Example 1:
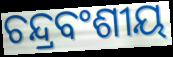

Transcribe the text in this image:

ଚନ୍ଦ୍ରବଂଶୀୟ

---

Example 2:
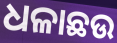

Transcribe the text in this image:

ଧଳାଛଉ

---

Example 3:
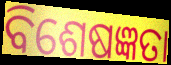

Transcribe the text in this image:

ବିଶେଷଜ୍ଞତା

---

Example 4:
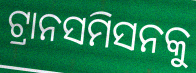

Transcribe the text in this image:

ଟ୍ରାନସମିସନକୁ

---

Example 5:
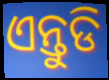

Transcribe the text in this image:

ଏନ୍ତୁଡି